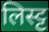
लिस्ट्ट